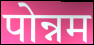
पोन्नम